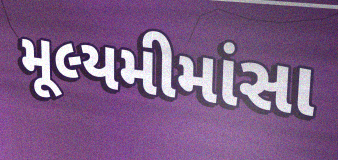
મૂલ્યમીમાંસા